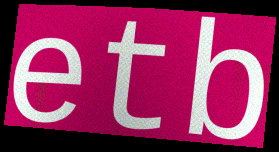
etb